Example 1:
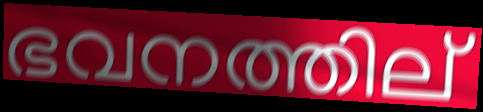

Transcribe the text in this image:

ഭവനത്തില്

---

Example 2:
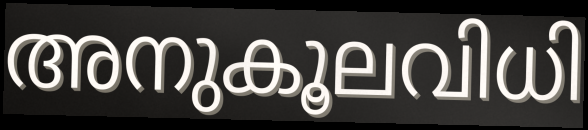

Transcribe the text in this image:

അനുകൂലവിധി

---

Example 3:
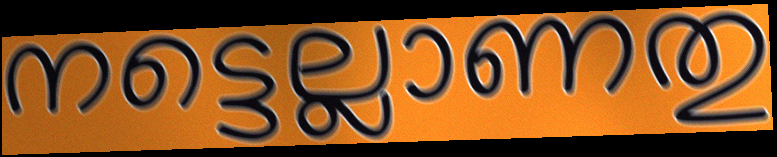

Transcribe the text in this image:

നട്ടെല്ലാണതു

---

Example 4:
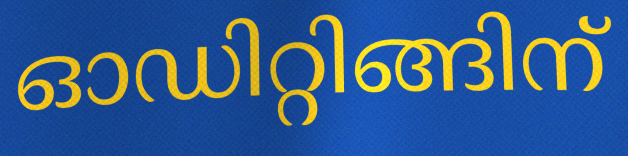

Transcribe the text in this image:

ഓഡിറ്റിങ്ങിന്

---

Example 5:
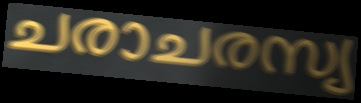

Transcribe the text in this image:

ചരാചരസ്യ